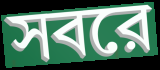
সবরে